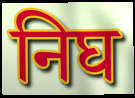
निघ